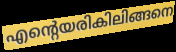
എന്റെയരികിലിങ്ങനെ